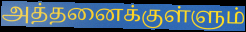
அத்தனைக்குள்ளும்